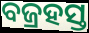
ବଜ୍ରହସ୍ତ